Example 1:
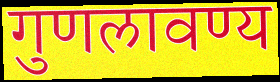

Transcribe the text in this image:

गुणलावण्य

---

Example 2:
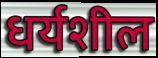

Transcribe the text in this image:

धर्यशील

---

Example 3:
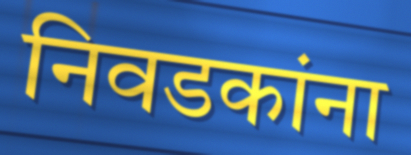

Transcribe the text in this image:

निवडकांना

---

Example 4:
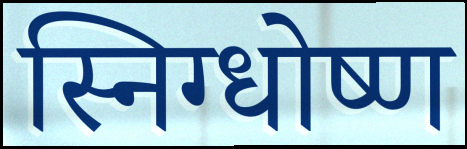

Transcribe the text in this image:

स्निग्धोष्ण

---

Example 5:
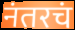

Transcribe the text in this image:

नंतरचं